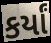
કર્યાં